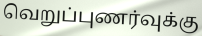
வெறுப்புணர்வுக்கு